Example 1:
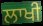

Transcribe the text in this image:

ਲਾਖੀ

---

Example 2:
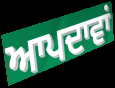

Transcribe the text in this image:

ਆਪਦਾਵਾਂ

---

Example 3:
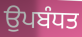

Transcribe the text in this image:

ਉਪਬੰਧਤ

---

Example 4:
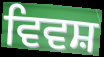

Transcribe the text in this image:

ਵਿਵਸ਼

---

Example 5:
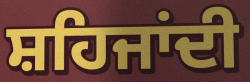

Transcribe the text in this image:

ਸ਼ਹਿਜਾਂਦੀ